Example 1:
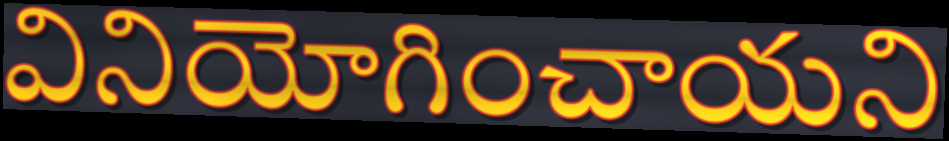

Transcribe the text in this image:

వినియోగించాయని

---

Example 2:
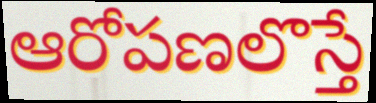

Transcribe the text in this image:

ఆరోపణలొస్తే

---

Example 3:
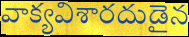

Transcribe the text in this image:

వాక్యవిశారదుడైన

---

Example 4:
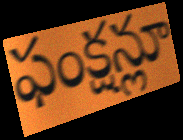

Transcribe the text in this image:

ఫంక్షన్లూ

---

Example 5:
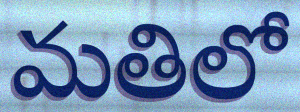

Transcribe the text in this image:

మతిలో